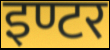
इण्टर